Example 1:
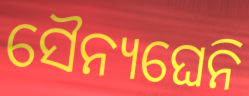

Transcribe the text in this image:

ସୈନ୍ୟଘେନି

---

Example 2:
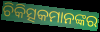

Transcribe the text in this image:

ଚିକିତ୍ସକମାନଙ୍କର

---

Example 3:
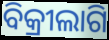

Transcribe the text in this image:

ବିକ୍ରୀଲାଗି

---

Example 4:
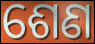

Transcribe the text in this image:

ଶେଣ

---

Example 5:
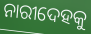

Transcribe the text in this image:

ନାରୀଦେହକୁ